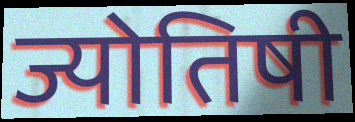
ज्योतिषी